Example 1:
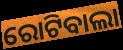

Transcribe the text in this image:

ରୋଟିବାଲା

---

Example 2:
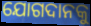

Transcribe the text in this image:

ଯୋଗଦାନକୁ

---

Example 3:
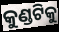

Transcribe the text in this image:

କୁଣ୍ଡଟିକୁ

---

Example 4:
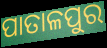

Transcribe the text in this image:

ପାତାଳପୁର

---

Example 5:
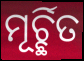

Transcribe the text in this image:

ମୂର୍ଚ୍ଛିତ